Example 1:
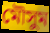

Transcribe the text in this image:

মৌসুম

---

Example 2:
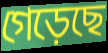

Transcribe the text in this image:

গেড়েছে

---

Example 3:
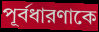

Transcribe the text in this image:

পূর্বধারণাকে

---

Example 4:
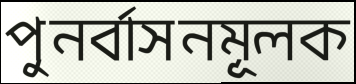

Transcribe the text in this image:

পুনর্বাসনমূলক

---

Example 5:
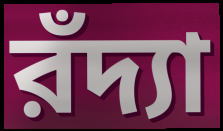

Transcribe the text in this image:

রঁদ্যা